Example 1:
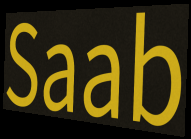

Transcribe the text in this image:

Saab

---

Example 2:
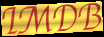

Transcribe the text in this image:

IMDB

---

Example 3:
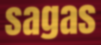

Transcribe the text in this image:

sagas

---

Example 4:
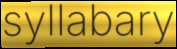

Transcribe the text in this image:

syllabary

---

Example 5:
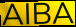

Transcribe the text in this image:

AIBA